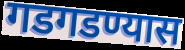
गडगडण्यास